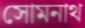
সোমনাথ